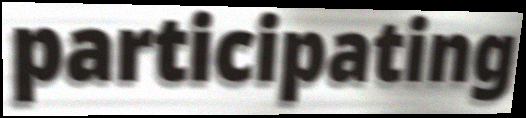
participating